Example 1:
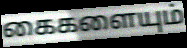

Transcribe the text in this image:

கைகளையும்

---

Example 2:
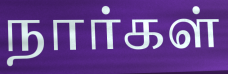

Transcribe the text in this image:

நார்கள்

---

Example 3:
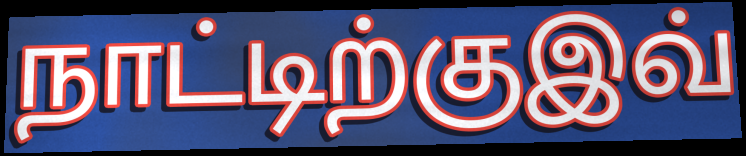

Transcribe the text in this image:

நாட்டிற்குஇவ்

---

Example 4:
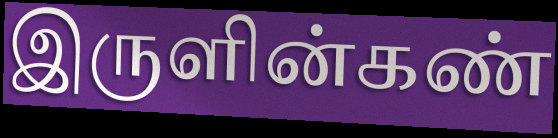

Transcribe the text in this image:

இருளின்கண்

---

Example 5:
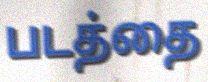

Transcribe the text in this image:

படத்தை